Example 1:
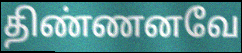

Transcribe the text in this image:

திண்ணனவே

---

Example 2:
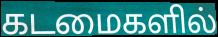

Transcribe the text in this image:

கடமைகளில்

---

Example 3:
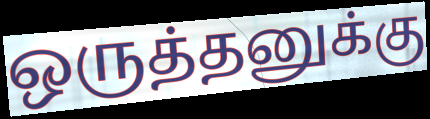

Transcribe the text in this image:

ஒருத்தனுக்கு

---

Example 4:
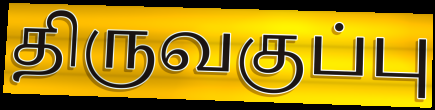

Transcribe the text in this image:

திருவகுப்பு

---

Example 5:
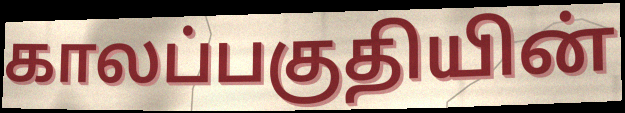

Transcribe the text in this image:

காலப்பகுதியின்